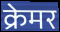
क्रेमर